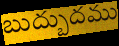
బుద్బుదము